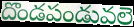
దొండపండువలె